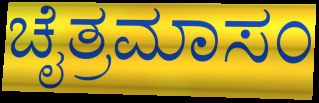
ಚೈತ್ರಮಾಸಂ